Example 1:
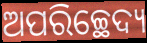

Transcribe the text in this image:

ଅପରିଚ୍ଛେଦ୍ୟ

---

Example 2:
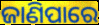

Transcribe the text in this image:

ଜାଣିପାରେ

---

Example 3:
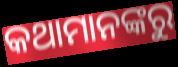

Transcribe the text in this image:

କଥାମାନଙ୍କରୁ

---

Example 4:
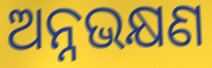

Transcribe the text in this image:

ଅନ୍ନଭକ୍ଷଣ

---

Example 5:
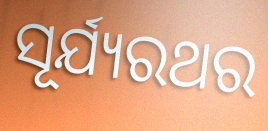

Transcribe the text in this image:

ସୂର୍ଯ୍ୟରଥର